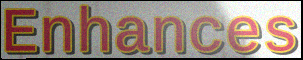
Enhances